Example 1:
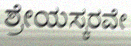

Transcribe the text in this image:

ಶ್ರೇಯಸ್ಕರವೇ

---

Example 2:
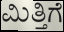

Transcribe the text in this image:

ಮಿತ್ತಿಗೆ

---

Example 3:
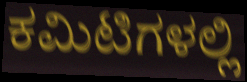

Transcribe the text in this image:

ಕಮಿಟಿಗಳಲ್ಲಿ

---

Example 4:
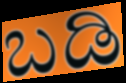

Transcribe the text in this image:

ಬಡಿ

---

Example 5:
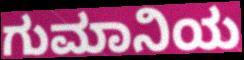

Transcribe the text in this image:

ಗುಮಾನಿಯ